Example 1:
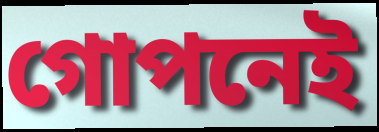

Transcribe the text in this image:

গোপনেই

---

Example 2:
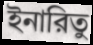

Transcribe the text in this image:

ইনারিতু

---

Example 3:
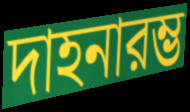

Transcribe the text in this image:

দাহনারম্ভ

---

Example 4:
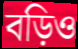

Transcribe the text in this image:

বড়িও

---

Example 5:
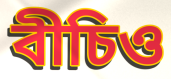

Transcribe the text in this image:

বীচিও